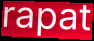
rapat